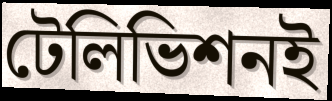
টেলিভিশনই